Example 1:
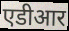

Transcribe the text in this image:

एडीआर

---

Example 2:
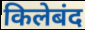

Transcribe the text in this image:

किलेबंद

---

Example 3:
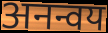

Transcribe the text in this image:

अनन्वय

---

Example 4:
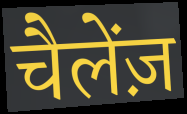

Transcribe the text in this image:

चैलेंज़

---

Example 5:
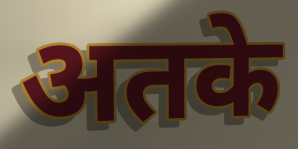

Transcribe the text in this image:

अतके